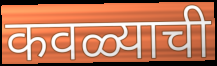
कवळ्याची